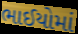
ભાઈયોમાં